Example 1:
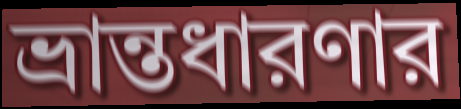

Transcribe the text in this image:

ভ্রান্তধারণার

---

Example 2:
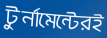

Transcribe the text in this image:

টুর্নামেন্টেরই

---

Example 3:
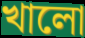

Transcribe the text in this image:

খালো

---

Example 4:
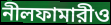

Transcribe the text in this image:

নীলফামারীও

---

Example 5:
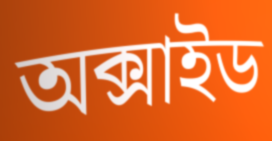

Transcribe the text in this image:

অক্সাইড